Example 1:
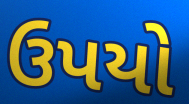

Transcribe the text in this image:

ઉપયો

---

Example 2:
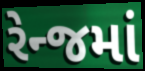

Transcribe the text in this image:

રેન્જમાં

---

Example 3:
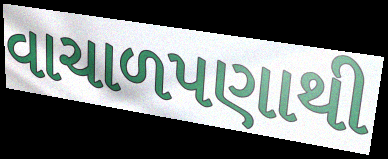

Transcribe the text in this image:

વાચાળપણાથી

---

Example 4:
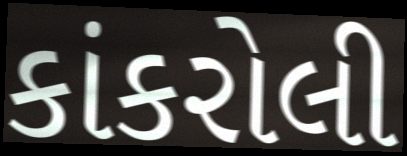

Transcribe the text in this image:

કાંકરોલી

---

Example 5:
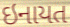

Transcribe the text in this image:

ઇનાયત